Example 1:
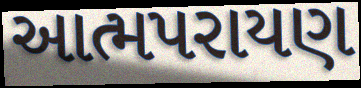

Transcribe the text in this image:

આત્મપરાયણ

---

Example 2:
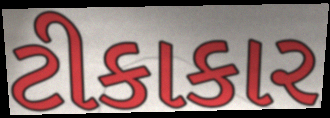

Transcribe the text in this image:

ટીકાકાર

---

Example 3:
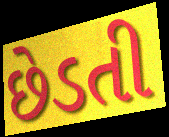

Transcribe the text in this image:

છેડતી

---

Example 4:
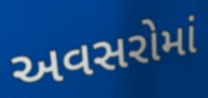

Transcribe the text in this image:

અવસરોમાં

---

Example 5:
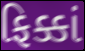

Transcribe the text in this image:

ફિક્કાં